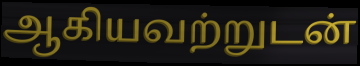
ஆகியவற்றுடன்